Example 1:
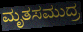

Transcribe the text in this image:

ಮೃತಸಮುದ್ರ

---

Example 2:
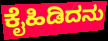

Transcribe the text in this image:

ಕೈಹಿಡಿದನು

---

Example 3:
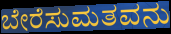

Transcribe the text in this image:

ಬೇರೆಸುಮತವನು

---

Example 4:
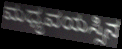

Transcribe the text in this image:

ಮಧ್ಯವಯಸ್ಸಿನ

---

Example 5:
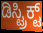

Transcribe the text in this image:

ಡಿಸ್ಟ್ರಿಕ್ಟ್